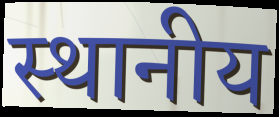
स्थानीय